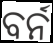
ବର୍ନ